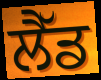
ਲੈੱਡ